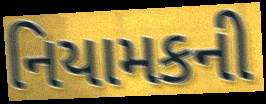
નિયામકની